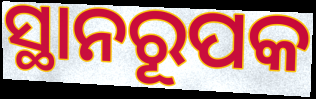
ସ୍ଥାନରୂପକ